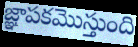
జ్ఞాపకమొస్తుంది